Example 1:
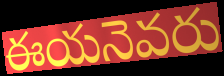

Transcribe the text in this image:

ఈయనెవరు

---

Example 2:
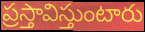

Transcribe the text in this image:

ప్రస్తావిస్తుంటారు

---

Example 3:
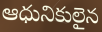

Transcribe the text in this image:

ఆధునికులైన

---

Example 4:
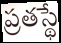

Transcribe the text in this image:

ప్రతస్థే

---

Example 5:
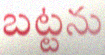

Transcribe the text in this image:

బట్టను